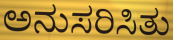
ಅನುಸರಿಸಿತು